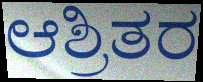
ಆಶ್ರಿತರ